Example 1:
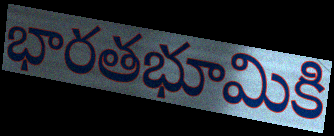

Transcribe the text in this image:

భారతభూమికి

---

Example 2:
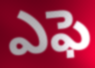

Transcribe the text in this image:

ఎఫె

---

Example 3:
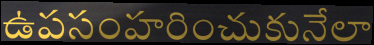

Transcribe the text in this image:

ఉపసంహరించుకునేలా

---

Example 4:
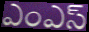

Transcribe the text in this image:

ఎంఎస్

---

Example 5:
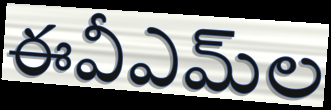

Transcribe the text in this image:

ఈవీఎమ్‌ల